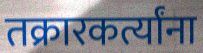
तक्रारकर्त्यांना